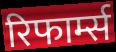
रिफार्म्स